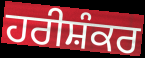
ਹਰੀਸ਼ੰਕਰ